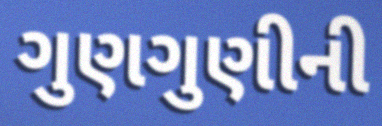
ગુણગુણીની